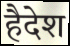
हैदेश